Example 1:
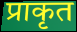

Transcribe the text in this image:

प्राकृत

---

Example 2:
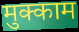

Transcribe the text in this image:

मुक्काम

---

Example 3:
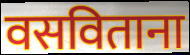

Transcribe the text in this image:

वसविताना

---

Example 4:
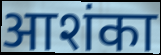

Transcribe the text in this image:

आशंका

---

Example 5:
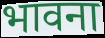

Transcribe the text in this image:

भावना